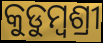
କୁଡୁମ୍ବଶ୍ରୀ